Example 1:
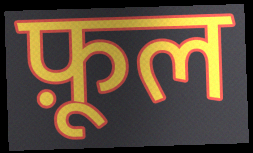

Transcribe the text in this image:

फ़ूल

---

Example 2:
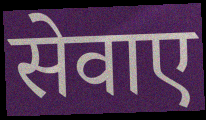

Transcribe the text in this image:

सेवाए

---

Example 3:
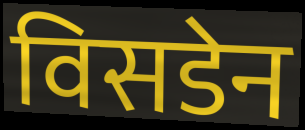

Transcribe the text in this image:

विसडेन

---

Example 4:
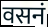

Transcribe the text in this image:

वसनं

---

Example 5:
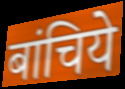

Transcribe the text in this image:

बांचिये